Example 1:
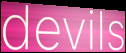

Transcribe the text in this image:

devils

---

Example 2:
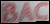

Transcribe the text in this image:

BAC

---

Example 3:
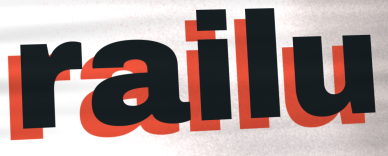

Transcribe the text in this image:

railu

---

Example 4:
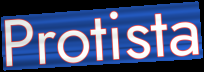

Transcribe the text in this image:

Protista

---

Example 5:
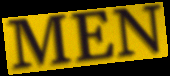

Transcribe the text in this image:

MEN